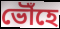
ভৌঁহে